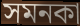
সমনকা